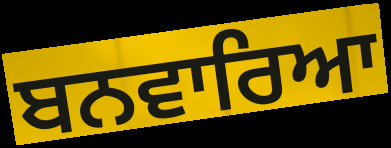
ਬਨਵਾਰਿਆ